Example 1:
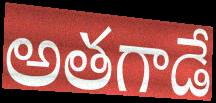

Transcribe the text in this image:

అతగాడే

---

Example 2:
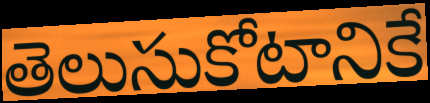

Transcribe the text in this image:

తెలుసుకోటానికే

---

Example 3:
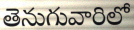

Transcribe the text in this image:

తెనుగువారిలో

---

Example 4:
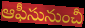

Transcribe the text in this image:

ఆఫీసునుంచీ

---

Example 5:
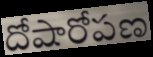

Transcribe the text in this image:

దోషారోపణ